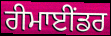
ਰੀਮਾਈਂਡਰ